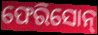
ଫେରିସୋନ୍